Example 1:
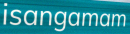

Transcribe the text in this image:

isangamam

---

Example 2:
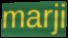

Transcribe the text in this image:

marji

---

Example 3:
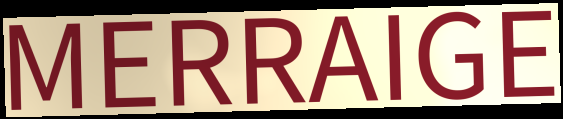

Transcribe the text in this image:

MERRAIGE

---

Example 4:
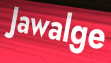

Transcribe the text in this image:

Jawalge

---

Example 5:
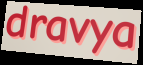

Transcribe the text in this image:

dravya